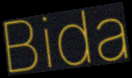
Bida